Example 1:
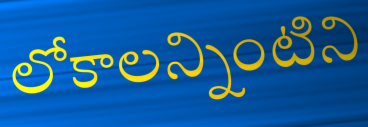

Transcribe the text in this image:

లోకాలన్నింటిని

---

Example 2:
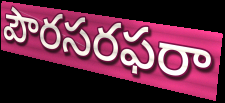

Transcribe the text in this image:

పౌరసరఫరా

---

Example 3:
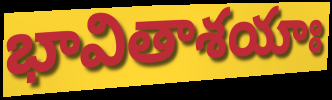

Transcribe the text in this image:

భావితాశయాః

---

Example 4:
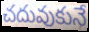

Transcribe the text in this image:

చదువుకునే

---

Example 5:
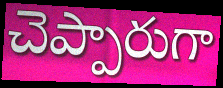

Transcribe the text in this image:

చెప్పారుగా